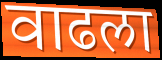
वाढला